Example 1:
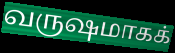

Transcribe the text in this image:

வருஷமாகக்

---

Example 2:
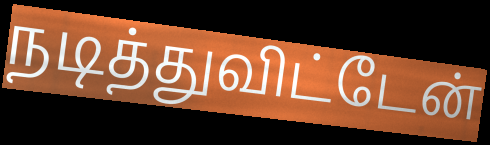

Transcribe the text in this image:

நடித்துவிட்டேன்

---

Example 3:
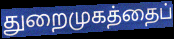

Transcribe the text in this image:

துறைமுகத்தைப்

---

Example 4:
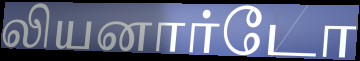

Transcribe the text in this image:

லியனார்டோ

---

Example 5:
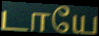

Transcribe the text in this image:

டாயே